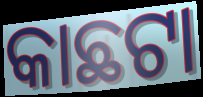
କାଛଟା